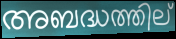
അബദ്ധത്തില്